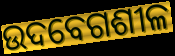
ଉଦବେଗଶୀଳ